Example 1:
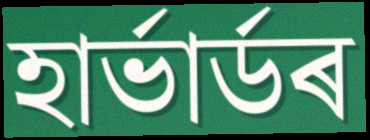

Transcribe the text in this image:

হাৰ্ভাৰ্ডৰ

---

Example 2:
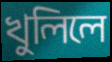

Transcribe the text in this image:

খুলিলে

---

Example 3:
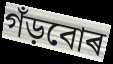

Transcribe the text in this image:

গঁড়বোৰ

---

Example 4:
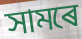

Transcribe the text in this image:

সামৰে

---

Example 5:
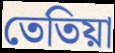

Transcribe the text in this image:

তেতিয়া